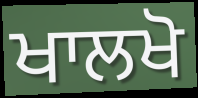
ਖਾਲਖੋ